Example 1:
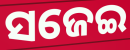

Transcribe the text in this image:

ସଜେଇ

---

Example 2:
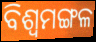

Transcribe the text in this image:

ବିଶ୍ୱମଙ୍ଗଳ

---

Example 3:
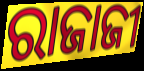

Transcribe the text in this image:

ରାଜାଜୀ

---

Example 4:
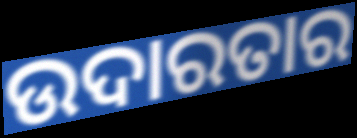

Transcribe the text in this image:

ଉଦାରତାର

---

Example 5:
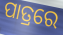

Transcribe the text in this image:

ପାତ୍ରରେ